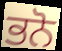
ਭਨੋ